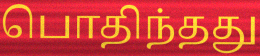
பொதிந்தது